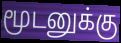
மூடனுக்கு